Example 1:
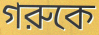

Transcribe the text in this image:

গরুকে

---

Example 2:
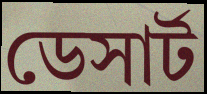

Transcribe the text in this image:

ডেসার্ট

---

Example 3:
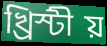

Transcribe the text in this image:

খ্রিস্টীয়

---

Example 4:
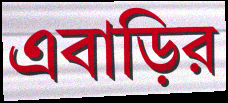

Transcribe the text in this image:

এবাড়ির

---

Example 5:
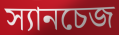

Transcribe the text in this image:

স্যানচেজ